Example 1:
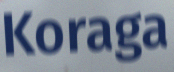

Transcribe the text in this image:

Koraga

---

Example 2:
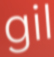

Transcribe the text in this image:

gil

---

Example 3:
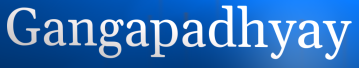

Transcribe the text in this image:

Gangapadhyay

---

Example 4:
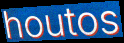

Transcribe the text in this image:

houtos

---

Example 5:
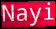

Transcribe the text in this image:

Nayi